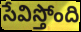
సేవిస్తోంది